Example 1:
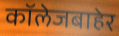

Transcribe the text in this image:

कॉलेजबाहेर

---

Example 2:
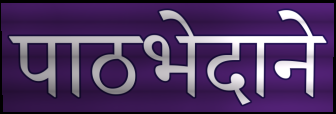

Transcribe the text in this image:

पाठभेदाने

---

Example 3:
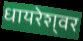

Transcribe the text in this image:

धायरेश्वर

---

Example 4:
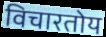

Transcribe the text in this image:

विचारतोय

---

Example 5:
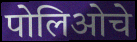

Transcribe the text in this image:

पोलिओचे